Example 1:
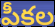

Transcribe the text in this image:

పీకల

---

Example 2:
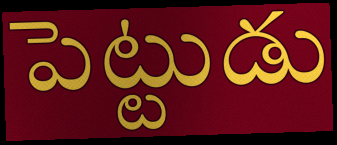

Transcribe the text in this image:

పెట్టుడు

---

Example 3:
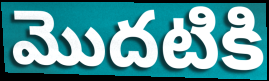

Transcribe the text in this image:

మొదటికి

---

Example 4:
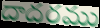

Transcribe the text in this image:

దాదరము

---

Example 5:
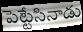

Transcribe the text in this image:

పెట్టేసినాడు